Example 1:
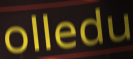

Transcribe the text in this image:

olledu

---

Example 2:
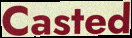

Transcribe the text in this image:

Casted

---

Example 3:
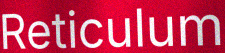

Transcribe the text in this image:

Reticulum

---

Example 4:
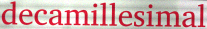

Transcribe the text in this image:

decamillesimal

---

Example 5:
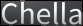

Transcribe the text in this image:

Chella